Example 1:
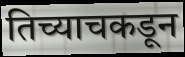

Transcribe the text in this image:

तिच्याचकडून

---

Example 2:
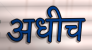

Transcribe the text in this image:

अधीच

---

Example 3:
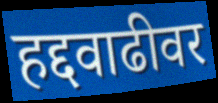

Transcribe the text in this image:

हद्दवाढीवर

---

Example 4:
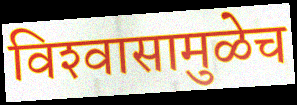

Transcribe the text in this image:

विश्वासामुळेच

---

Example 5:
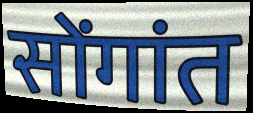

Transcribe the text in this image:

सोंगांत